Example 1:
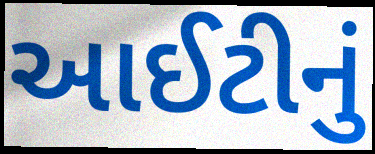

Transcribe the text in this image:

આઈટીનું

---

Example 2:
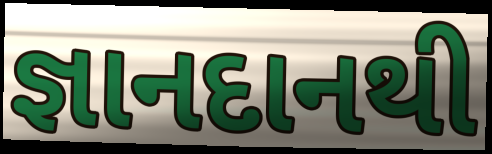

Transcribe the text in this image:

જ્ઞાનદાનથી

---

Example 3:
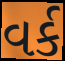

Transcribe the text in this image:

વર્ક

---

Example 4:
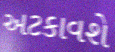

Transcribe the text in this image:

અટકાવશે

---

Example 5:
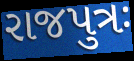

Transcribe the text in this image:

રાજપુત્રઃ